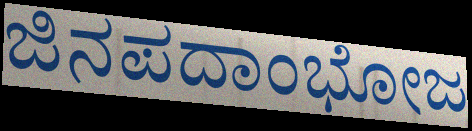
ಜಿನಪದಾಂಭೋಜ